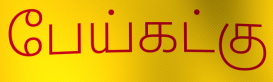
பேய்கட்கு